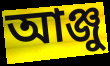
আঞ্জু